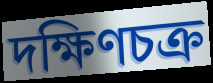
দক্ষিণচক্র